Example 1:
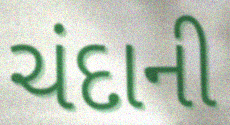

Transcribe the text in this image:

ચંદાની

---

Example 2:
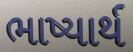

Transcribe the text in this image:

ભાષ્યાર્થ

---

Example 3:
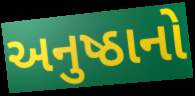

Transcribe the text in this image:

અનુષ્ઠાનો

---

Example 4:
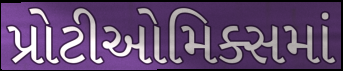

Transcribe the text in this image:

પ્રોટીઓમિક્સમાં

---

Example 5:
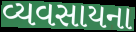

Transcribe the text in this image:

વ્યવસાયના